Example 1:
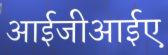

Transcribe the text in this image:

आईजीआईए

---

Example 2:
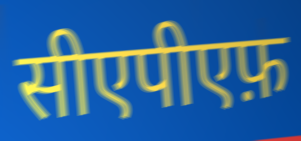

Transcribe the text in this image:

सीएपीएफ़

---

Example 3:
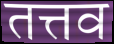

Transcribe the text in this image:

तत्तव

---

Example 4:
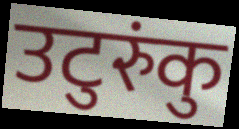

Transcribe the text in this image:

उटुरुंकु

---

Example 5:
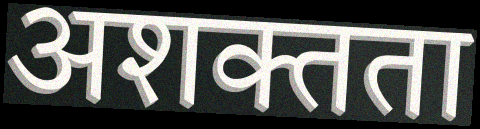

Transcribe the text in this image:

अशक्‍तता